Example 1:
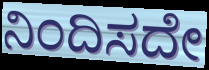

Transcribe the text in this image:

ನಿಂದಿಸದೇ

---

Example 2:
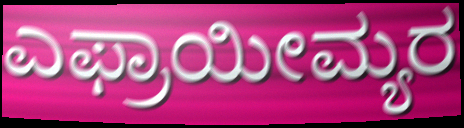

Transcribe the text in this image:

ಎಫ್ರಾಯೀಮ್ಯರ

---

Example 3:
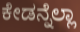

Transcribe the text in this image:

ಕೇಡನ್ನೆಲ್ಲಾ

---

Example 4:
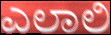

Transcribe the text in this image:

ಎಲಾಲಿ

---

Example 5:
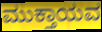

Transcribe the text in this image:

ಮುಕ್ತಾಯವ